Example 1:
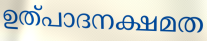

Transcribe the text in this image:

ഉത്പാദനക്ഷമത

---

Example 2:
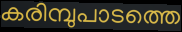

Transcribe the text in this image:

കരിമ്പുപാടത്തെ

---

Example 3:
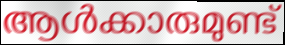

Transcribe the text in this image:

ആൾക്കാരുമുണ്ട്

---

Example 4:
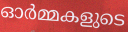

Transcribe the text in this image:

ഓർമ്മകളുടെ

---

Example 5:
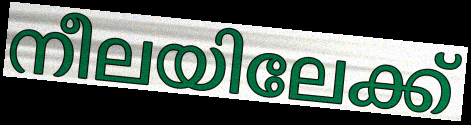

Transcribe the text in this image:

നീലയിലേക്ക്